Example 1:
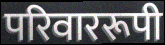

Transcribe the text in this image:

परिवाररूपी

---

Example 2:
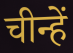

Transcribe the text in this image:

चीन्हें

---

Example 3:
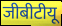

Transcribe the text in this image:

जीबीटीयू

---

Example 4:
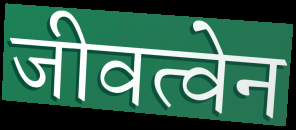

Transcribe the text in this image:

जीवत्वेन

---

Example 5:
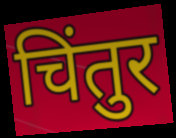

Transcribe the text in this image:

चिंतुर